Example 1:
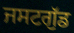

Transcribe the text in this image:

ਜਸਟਗੁੱਡ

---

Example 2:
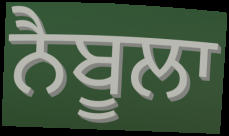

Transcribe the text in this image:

ਨੈਬੂਲਾ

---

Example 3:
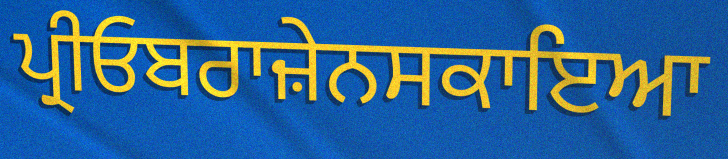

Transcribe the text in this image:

ਪ੍ਰੀਓਬਰਾਜ਼ੇਨਸਕਾਇਆ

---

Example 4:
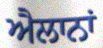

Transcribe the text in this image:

ਐਲਾਨਾਂ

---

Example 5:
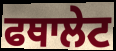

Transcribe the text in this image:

ਫਥਾਲੇਟ